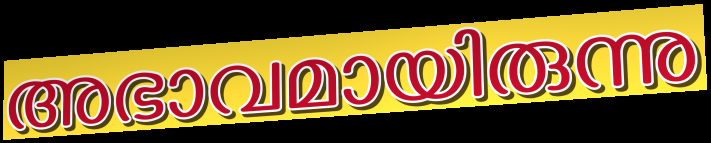
അഭാവമായിരുന്നു